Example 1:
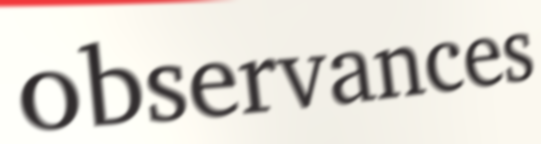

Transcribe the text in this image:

observances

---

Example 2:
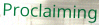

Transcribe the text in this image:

Proclaiming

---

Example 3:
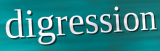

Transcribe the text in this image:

digression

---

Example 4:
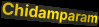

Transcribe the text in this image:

Chidamparam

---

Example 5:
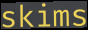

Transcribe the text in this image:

skims